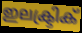
ഇലക്ട്രിക്